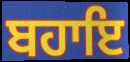
ਬਹਾਇ